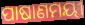
ପାଷାଣମୟୀ